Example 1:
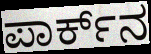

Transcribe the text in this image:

ಪಾರ್ಕ್‌ನ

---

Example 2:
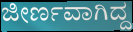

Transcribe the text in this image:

ಜೀರ್ಣವಾಗಿದ್ದ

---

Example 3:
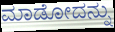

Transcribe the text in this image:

ಮಾಡೋದನ್ನು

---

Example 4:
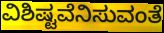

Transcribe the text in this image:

ವಿಶಿಷ್ಟವೆನಿಸುವಂತೆ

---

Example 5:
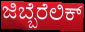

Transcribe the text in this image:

ಜಿಬ್ಬೆರೆಲಿಕ್